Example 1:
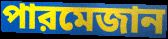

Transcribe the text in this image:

পারমেজান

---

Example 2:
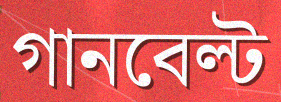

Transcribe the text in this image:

গানবেল্ট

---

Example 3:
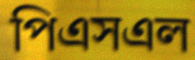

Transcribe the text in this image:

পিএসএল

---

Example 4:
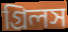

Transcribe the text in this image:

গ্রিলস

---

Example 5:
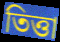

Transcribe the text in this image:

তিত্তা